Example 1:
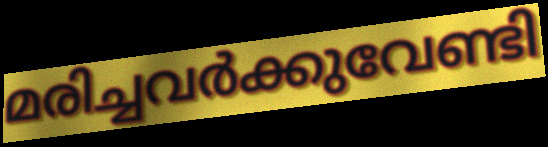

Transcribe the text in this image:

മരിച്ചവർക്കുവേണ്ടി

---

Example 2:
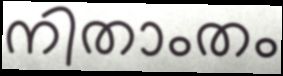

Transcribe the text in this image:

നിതാംതം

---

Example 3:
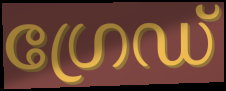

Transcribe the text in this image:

ഗ്രേഡ്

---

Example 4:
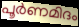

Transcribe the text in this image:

പൂർണമിദം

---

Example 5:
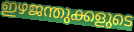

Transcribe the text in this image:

ഇഴജന്തുക്കളുടെ